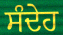
ਸੰਦੇਹ